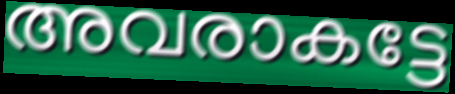
അവരാകട്ടേ